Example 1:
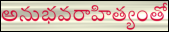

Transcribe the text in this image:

అనుభవరాహిత్యంతో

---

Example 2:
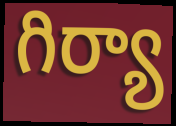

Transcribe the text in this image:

గిర్యా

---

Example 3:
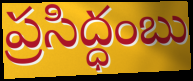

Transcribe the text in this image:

ప్రసిద్ధంబు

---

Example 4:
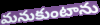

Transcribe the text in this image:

మనుకుంటాను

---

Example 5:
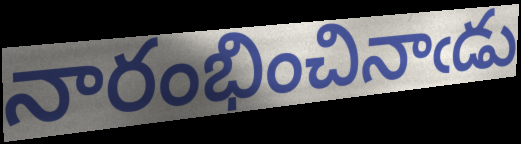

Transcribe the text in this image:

నారంభించినాఁడు